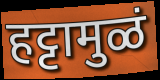
हट्टामुळं